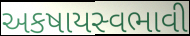
અકષાયસ્વભાવી